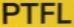
PTFL